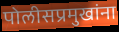
पोलीसप्रमुखांना